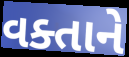
વક્તાને